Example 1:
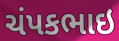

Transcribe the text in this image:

ચંપકભાઇ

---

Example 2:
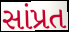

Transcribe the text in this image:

સાંપ્રત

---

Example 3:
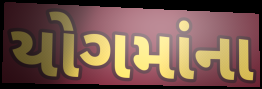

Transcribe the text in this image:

યોગમાંના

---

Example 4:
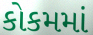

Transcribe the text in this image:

કોકમમાં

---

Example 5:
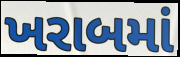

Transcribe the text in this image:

ખરાબમાં